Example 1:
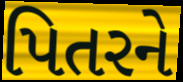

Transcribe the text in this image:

પિતરને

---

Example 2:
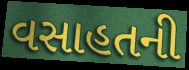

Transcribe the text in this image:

વસાહતની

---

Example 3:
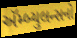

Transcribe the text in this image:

ઍમ્બ્યુલન્સનો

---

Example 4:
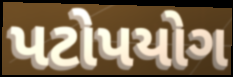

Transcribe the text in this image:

પટોપયોગ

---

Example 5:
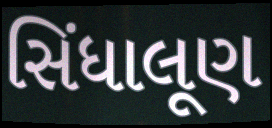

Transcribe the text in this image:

સિંધાલૂણ